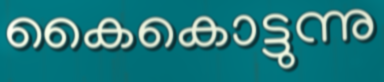
കൈകൊട്ടുന്നു